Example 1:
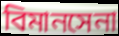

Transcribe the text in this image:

বিমানসেনা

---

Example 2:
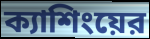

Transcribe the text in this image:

ক্যাশিংয়ের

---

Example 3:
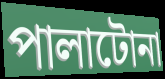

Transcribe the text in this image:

পালাটোনা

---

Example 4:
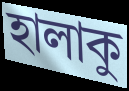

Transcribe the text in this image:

হালাকু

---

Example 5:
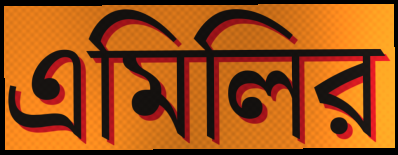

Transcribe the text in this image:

এমিলির